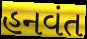
હનવંત